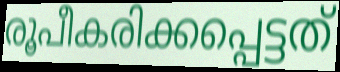
രൂപീകരിക്കപ്പെട്ടത്